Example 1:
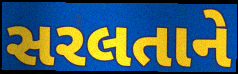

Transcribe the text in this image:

સરલતાને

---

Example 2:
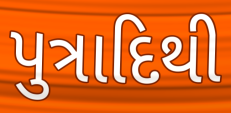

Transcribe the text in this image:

પુત્રાદિથી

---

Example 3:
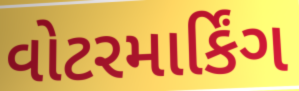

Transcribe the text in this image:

વોટરમાર્કિંગ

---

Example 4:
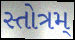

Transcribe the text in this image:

સ્તોત્રમ્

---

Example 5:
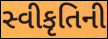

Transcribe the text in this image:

સ્વીકૃતિની